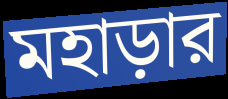
মহাড়ার